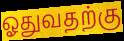
ஓதுவதற்கு